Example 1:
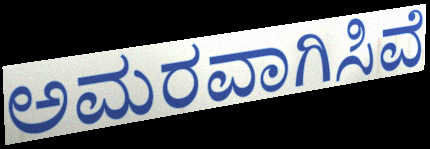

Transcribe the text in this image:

ಅಮರವಾಗಿಸಿವೆ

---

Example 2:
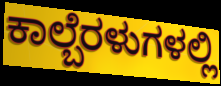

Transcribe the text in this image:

ಕಾಲ್ಬೆರಳುಗಳಲ್ಲಿ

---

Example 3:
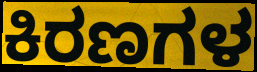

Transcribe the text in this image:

ಕಿರಣಗಳ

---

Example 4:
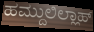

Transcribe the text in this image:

ಹಮ್ದುಲಿಲ್ಲಾಹ್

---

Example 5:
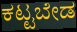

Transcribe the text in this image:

ಕಟ್ಟಬೇಡ